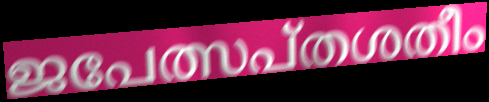
ജപേത്സപ്തശതീം